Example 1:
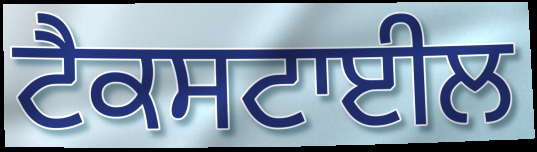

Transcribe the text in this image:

ਟੈਕਸਟਾਈਲ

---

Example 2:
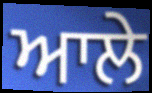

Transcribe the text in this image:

ਆਲੇ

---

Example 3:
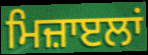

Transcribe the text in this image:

ਮਿਜ਼ਾੲਲਾਂ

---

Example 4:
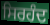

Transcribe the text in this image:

ਸਿਰਹੰਦ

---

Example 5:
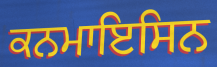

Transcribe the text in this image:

ਕਨਮਾਇਸਿਨ